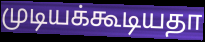
முடியக்கூடியதா